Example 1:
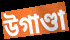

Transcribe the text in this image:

উগাণ্ডা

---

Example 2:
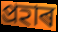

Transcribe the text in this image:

প্ৰহাৰ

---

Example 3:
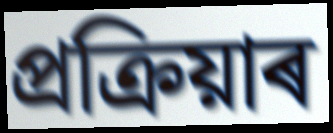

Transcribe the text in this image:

প্ৰক্ৰিয়াৰ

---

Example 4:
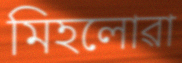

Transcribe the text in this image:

মিহলোৱা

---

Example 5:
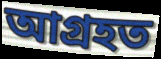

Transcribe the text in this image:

আগ্ৰহত